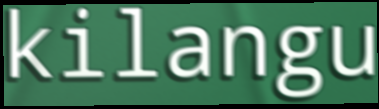
kilangu